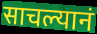
साचल्यानं